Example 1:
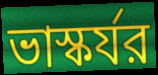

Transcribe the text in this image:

ভাস্কর্যর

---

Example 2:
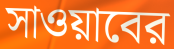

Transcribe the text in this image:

সাওয়াবের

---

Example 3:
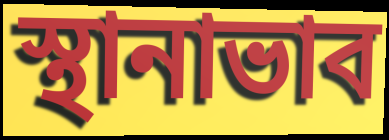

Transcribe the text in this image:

স্থানাভাব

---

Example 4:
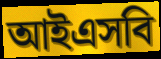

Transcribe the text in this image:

আইএসবি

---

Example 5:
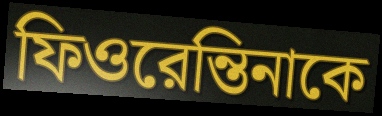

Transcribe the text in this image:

ফিওরেন্তিনাকে